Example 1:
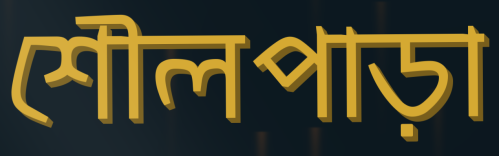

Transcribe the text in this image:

শৌলপাড়া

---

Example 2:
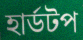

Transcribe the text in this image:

হার্ডটপ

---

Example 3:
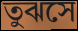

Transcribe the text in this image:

তুঝসে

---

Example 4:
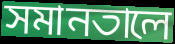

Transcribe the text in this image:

সমানতালে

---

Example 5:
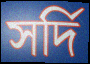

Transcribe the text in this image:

সর্দি